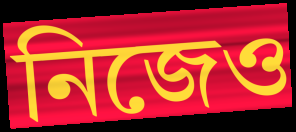
নিজেও